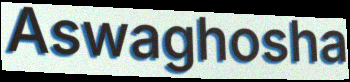
Aswaghosha